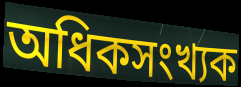
অধিকসংখ্যক